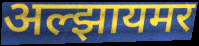
अल्झायमर